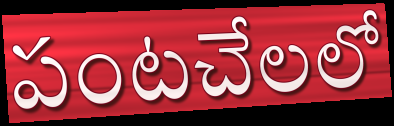
పంటచేలలో